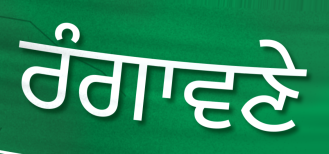
ਰੰਗਾਵਣੇ